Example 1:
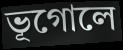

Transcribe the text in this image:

ভূগোলে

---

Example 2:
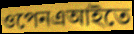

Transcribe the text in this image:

ওপেনএআইতে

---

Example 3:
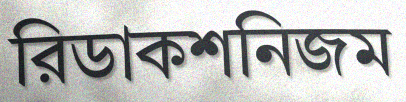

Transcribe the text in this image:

রিডাকশনিজম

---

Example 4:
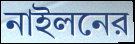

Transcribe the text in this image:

নাইলনের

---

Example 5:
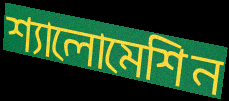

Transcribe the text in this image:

শ্যালোমেশিন